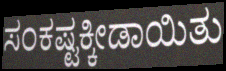
ಸಂಕಷ್ಟಕ್ಕೀಡಾಯಿತು